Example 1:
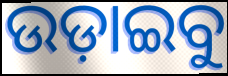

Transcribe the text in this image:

ଉଡ଼ାଇବୁ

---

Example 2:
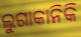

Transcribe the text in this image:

ଲୁଗାକାନିକି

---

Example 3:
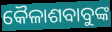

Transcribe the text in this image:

କୈଳାଶବାବୁଙ୍କ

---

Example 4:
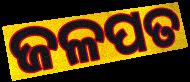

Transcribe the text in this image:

ଜଳପତ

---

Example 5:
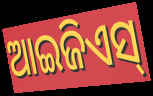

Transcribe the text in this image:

ଆଇଜିଏସ୍